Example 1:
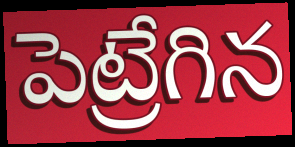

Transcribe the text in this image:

పెట్రేగిన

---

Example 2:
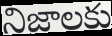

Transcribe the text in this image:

నిజాలకు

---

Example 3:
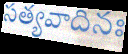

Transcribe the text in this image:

సత్యవాదినః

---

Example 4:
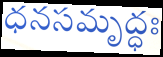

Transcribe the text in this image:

ధనసమృద్ధః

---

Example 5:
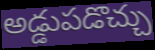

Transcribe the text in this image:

అడ్డుపడొచ్చు